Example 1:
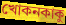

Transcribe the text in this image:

খোকনকাকু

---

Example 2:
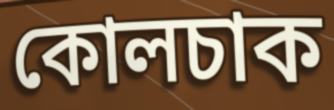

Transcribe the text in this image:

কোলচাক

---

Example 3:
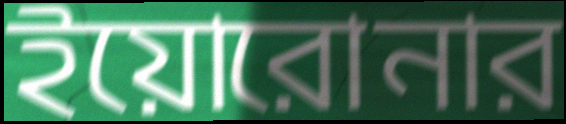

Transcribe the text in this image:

ইয়োরোনার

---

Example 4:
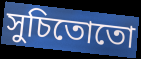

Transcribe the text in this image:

সুচিতোতো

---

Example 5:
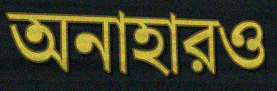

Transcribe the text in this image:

অনাহারও